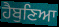
ਹੈਬੁਣਿਆ